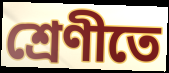
শ্রেণীতে